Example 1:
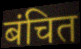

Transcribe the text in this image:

बंचित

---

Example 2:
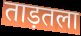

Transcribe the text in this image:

ताड़तला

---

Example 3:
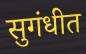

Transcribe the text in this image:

सुगंधीत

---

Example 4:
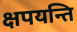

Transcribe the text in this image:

क्षपयन्ति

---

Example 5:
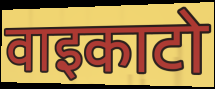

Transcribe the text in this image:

वाइकाटो